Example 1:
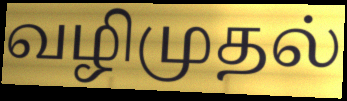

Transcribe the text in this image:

வழிமுதல்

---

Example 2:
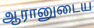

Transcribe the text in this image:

ஆரானுடைய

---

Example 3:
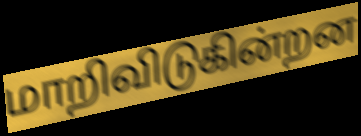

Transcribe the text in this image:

மாறிவிடுகின்றன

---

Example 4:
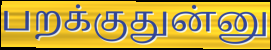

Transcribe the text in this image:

பறக்குதுன்னு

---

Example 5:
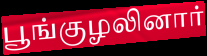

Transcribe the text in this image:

பூங்குழலினார்